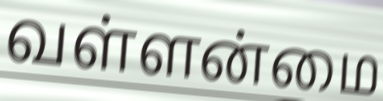
வள்ளன்மை